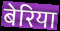
बेरिया